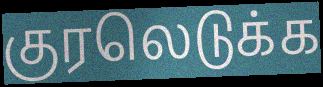
குரலெடுக்க